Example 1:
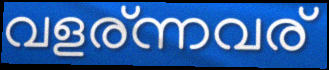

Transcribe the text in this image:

വളര്ന്നവര്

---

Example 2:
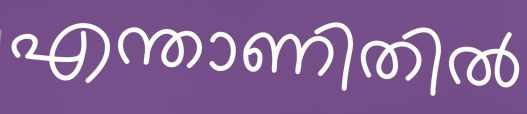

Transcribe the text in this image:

എന്താണിതിൽ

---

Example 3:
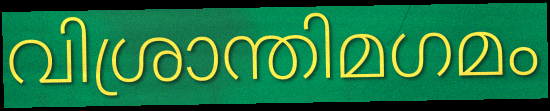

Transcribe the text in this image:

വിശ്രാന്തിമഗമം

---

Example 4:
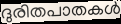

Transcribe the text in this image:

ദുരിതപാതകൾ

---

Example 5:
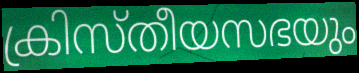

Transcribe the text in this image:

ക്രിസ്തീയസഭയും